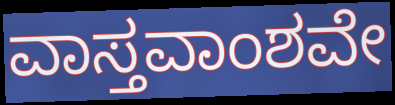
ವಾಸ್ತವಾಂಶವೇ